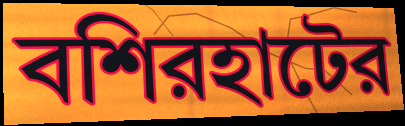
বশিরহাটের